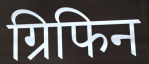
ग्रिफिन